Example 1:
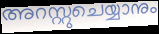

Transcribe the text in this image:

അറസ്റ്റുചെയ്യാനും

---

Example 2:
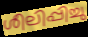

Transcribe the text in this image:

ശീലിപ്പിച്ചു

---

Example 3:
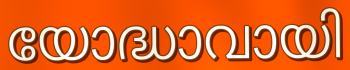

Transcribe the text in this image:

യോദ്ധാവായി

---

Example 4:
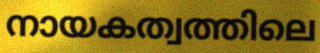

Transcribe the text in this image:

നായകത്വത്തിലെ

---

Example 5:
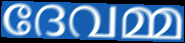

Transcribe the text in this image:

ദേവമ്മ